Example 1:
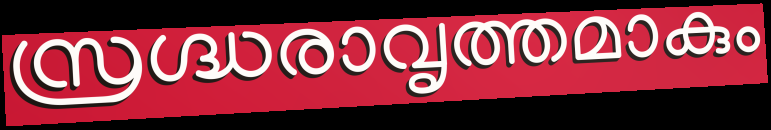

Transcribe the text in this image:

സ്രഗ്ദ്ധരാവൃത്തമാകും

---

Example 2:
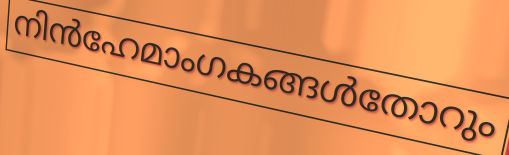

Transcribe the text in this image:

നിൻഹേമാംഗകങ്ങൾതോറും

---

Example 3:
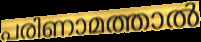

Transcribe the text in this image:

പരിണാമത്താൽ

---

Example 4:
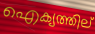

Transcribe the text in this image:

ഐക്യത്തില്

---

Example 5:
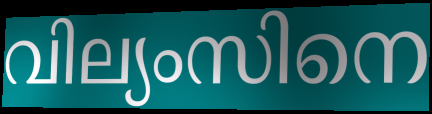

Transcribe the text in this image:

വില്യംസിനെ